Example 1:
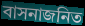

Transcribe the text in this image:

বাসনাজনিত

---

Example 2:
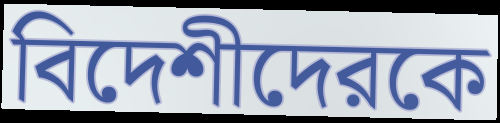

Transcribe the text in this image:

বিদেশীদেরকে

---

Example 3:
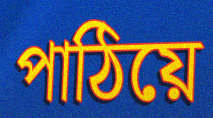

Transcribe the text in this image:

পাঠিয়ে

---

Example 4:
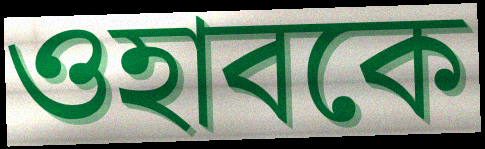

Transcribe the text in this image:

ওহাবকে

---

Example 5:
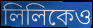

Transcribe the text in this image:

লিলিকেও